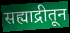
सह्याद्रीतून